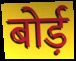
बोर्ड़